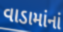
વાડામાંનાં